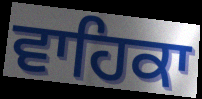
ਵਾਹਿਕਾ